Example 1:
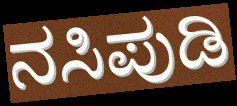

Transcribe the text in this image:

ನಸಿಪುಡಿ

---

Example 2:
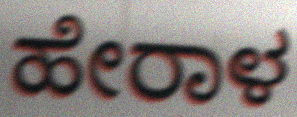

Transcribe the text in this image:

ಹೇರಾಳ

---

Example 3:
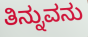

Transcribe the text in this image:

ತಿನ್ನುವನು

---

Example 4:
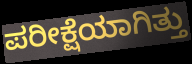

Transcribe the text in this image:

ಪರೀಕ್ಷೆಯಾಗಿತ್ತು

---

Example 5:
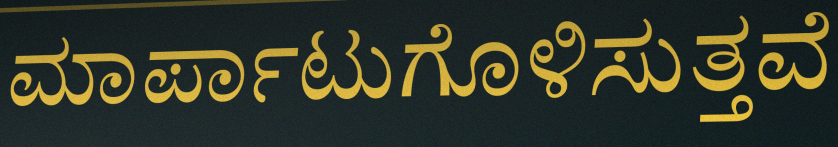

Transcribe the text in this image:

ಮಾರ್ಪಾಟುಗೊಳಿಸುತ್ತವೆ